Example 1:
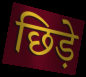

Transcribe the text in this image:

छिड़े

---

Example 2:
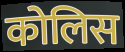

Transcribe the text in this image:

कोलिस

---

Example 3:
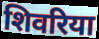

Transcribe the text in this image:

शिवरिया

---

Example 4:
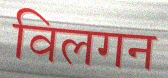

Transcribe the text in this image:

विलगन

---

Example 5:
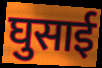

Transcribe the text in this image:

घुसाई